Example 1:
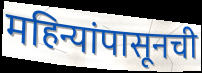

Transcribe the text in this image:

महिन्यांपासूनची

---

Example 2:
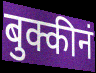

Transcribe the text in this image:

बुक्कीनं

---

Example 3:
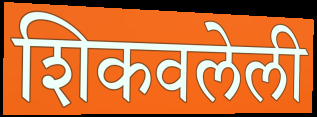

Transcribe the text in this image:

शिकवलेली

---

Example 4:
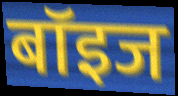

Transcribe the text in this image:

बॉइज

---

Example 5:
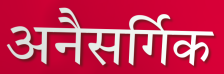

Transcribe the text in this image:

अनैसर्गिक